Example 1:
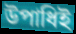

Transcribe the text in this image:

উপাধিই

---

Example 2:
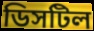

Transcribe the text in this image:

ডিসটিল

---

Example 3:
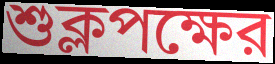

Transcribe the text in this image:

শুক্লপক্ষের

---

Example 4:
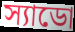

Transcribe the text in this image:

স্যাডো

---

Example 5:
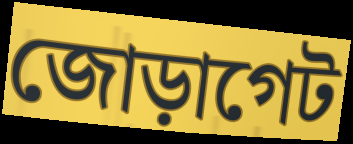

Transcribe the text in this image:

জোড়াগেট